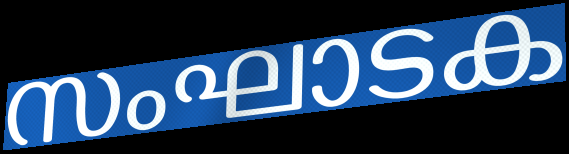
സംഘാടക